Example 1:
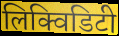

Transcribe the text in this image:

लिक्विडिटी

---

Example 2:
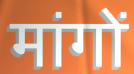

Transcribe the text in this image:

मांगों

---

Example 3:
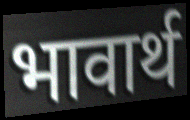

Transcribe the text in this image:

भावार्थ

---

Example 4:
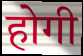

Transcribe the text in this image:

होगी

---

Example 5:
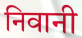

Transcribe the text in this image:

निवानी